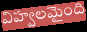
విహ్వలమైంది